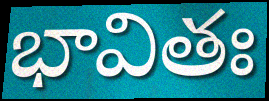
భావితః